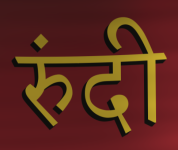
रुंदी